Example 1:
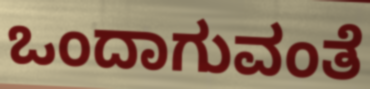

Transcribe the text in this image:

ಒಂದಾಗುವಂತೆ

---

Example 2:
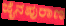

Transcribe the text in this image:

ಜೈನಪುರಾಣ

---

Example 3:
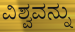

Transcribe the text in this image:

ವಿಶ್ವವನ್ನು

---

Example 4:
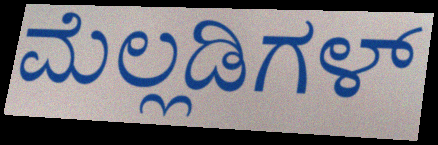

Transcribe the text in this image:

ಮೆಲ್ಲಡಿಗಳ್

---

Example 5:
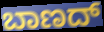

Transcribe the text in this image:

ಬಾಣದ್